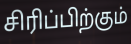
சிரிப்பிற்கும்